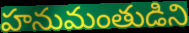
హనుమంతుడిని